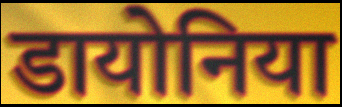
डायोनिया